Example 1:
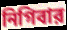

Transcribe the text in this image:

নিগিবার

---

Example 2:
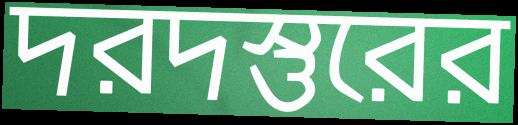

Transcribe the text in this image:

দরদস্তুরের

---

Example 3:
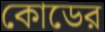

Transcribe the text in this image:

কোডের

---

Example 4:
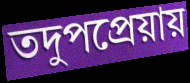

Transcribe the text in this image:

তদুপপ্রেয়ায়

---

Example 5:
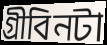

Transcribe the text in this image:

গ্রীবিনটা